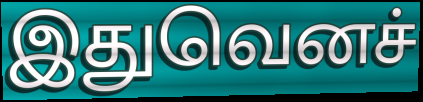
இதுவெனச்